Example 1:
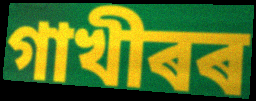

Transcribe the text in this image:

গাখীৰৰ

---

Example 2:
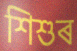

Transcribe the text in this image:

শিশুৰ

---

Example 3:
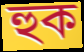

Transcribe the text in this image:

হুক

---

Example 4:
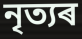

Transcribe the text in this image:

নৃত্যৰ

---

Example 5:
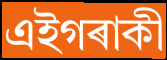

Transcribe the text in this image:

এইগৰাকী